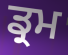
ਡ੍ਰਮ